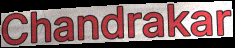
Chandrakar